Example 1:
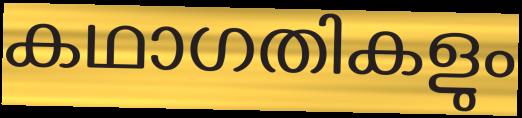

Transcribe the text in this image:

കഥാഗതികളും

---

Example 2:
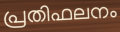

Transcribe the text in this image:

പ്രതിഫലനം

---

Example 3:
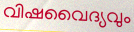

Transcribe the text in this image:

വിഷവൈദ്യവും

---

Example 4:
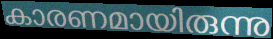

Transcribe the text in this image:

കാരണമായിരുന്നു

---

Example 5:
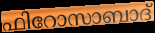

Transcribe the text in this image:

ഫിറോസാബാദ്